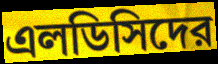
এলডিসিদের